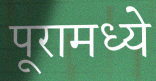
पूरामध्ये